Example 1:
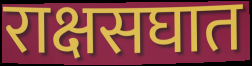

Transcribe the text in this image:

राक्षसघात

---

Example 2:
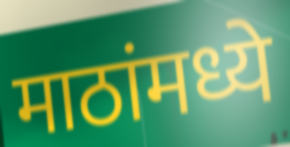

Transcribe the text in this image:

माठांमध्ये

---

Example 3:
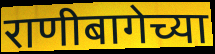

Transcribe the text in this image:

राणीबागेच्या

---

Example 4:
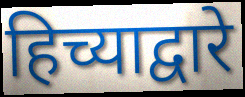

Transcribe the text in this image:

हिच्याद्वारे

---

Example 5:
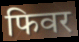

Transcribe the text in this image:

फिवर